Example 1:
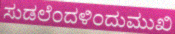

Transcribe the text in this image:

ಸುಡಲೆಂದಳಿಂದುಮುಖಿ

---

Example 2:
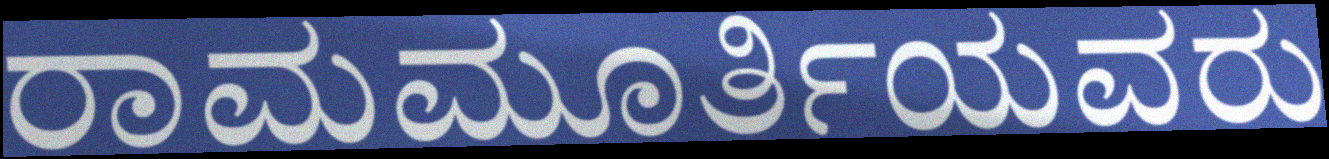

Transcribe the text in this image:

ರಾಮಮೂರ್ತಿಯವರು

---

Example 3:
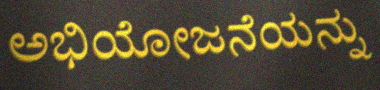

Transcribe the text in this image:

ಅಭಿಯೋಜನೆಯನ್ನು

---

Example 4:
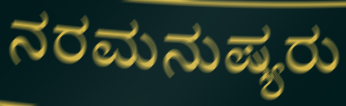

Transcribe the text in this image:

ನರಮನುಷ್ಯರು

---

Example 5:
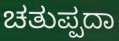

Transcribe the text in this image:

ಚತುಪ್ಪದಾ